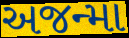
અજન્મા